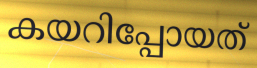
കയറിപ്പോയത്